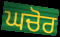
ਘਚੋਰ